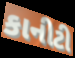
કાનીટી